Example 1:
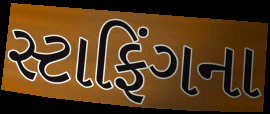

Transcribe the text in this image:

સ્ટાફિંગના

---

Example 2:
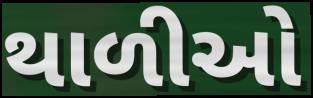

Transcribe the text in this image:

થાળીઓ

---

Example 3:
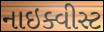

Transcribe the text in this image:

નાઇક્વીસ્ટ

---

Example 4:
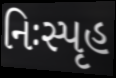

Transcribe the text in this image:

નિઃસ્પૃહ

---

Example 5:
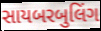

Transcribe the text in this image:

સાયબરબુલિંગ